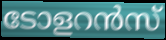
ടോളറൻസ്